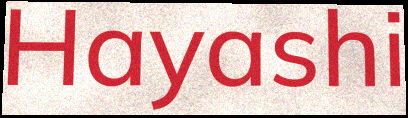
Hayashi